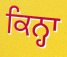
ਕਿਨ੍ਹਾ